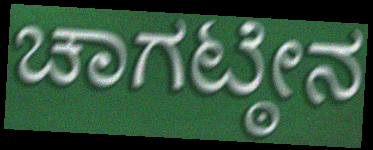
ಚಾಗಟ್ಠೇನ